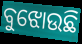
ବୁଝୋଉଛି